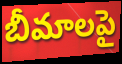
బీమాలపై